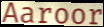
Aaroor